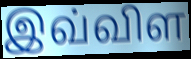
இவ்விள